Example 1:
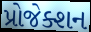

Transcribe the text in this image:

પ્રોજેક્શન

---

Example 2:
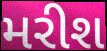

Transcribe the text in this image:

મરીશ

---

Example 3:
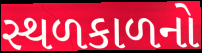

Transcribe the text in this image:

સ્થળકાળનો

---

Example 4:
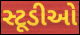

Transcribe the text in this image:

સ્ટૂડીઓ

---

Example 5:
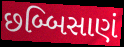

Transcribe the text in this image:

છબ્બિસાણં